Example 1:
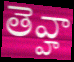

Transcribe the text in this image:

తెవ్హా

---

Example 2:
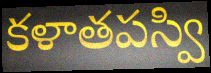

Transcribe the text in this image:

కళాతపస్వి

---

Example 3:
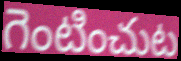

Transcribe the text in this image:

గెంటించుట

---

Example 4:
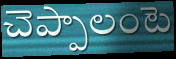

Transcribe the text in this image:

చెప్పాలంటె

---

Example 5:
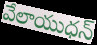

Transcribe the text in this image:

వేలాయుధన్